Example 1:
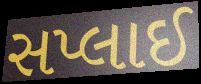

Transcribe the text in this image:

સપ્લાઈ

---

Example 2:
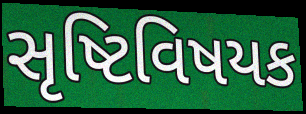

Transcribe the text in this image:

સૃષ્ટિવિષયક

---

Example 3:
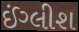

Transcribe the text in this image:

ઈંગ્લીશ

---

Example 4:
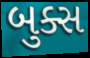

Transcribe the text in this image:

બુક્સ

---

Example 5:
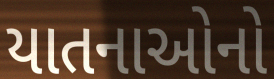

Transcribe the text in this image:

યાતનાઓનો